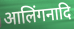
आलिंगनादि